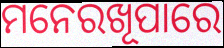
ମନେରଖୂପାରେ